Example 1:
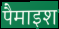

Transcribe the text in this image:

पैमाइश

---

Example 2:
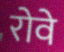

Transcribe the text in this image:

रोवे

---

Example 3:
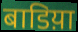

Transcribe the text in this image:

बाडिय़ा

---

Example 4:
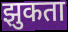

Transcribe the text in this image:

झुकता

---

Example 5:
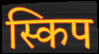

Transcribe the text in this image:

स्किप